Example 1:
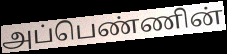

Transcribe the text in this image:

அப்பெண்ணின்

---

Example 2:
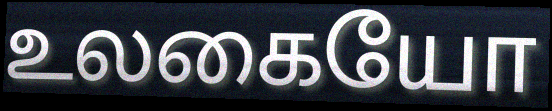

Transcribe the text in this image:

உலகையோ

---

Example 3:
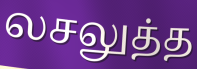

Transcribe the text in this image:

லசலுத்த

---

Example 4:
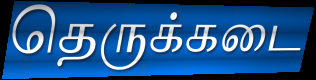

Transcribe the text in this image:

தெருக்கடை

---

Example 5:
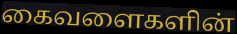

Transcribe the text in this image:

கைவளைகளின்